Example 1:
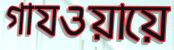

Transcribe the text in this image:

গাযওয়ায়ে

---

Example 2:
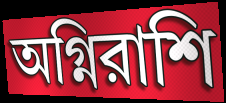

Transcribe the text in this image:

অগ্নিরাশি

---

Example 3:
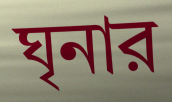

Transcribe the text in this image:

ঘৃনার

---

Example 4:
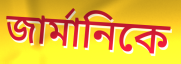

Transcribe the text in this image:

জার্মানিকে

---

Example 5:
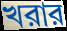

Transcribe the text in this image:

খরার